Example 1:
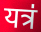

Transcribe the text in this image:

यत्र॑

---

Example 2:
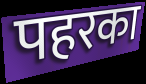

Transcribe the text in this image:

पहरका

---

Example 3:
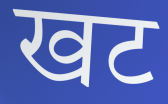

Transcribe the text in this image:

खट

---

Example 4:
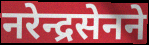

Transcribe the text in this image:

नरेन्द्रसेनने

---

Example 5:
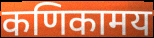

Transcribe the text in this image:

कणिकामय